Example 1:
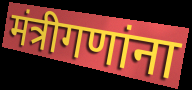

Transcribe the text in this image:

मंत्रीगणांना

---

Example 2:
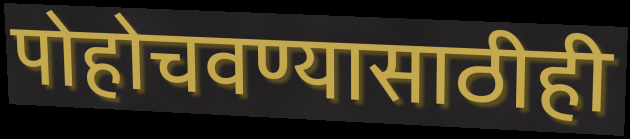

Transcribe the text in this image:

पोहोचवण्यासाठीही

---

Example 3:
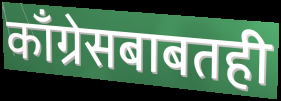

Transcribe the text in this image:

काँग्रेसबाबतही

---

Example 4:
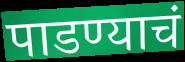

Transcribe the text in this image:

पाडण्याचं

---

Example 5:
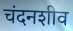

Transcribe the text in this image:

चंदनशीव